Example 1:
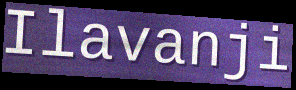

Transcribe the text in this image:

Ilavanji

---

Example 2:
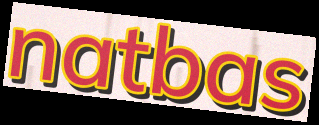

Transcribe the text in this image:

natbas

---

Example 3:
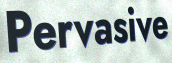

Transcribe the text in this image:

Pervasive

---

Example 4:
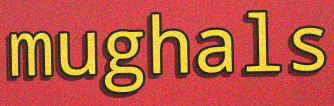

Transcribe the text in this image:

mughals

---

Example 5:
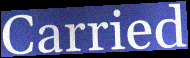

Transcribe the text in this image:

Carried